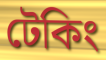
টেকিং